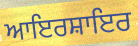
ਆਇਰਸ਼ਾਇਰ